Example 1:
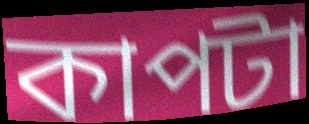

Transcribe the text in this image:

কাপটা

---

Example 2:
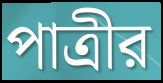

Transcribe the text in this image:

পাত্রীর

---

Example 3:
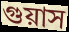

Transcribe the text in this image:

গুয়াস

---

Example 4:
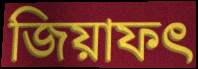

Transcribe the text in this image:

জিয়াফৎ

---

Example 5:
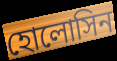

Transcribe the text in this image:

হোলোসিন